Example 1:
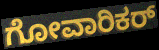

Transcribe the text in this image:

ಗೋವಾರಿಕರ್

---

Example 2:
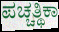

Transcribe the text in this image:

ಪಚ್ಚತ್ಥಿಕಾ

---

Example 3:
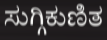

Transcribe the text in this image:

ಸುಗ್ಗಿಕುಣಿತ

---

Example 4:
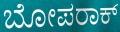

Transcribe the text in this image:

ಬೋಪರಾಕ್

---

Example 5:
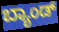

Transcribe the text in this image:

ಬ್ಯಾಂಡ್